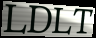
LDLT